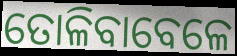
ତୋଳିବାବେଳେ